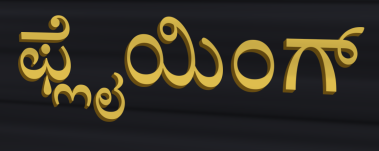
ಫ್ಲೈಯಿಂಗ್